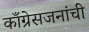
काँग्रेसजनांची